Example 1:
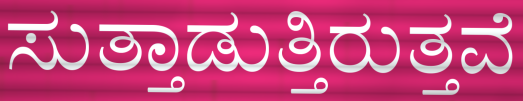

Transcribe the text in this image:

ಸುತ್ತಾಡುತ್ತಿರುತ್ತವೆ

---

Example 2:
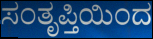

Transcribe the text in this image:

ಸಂತೃಪ್ತಿಯಿಂದ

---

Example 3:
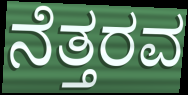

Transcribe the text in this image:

ನೆತ್ತರವ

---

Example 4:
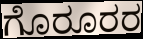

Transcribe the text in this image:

ಗೊರೂರರ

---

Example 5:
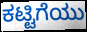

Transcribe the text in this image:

ಕಟ್ಟಿಗೆಯು